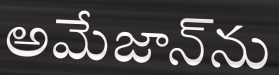
అమేజాన్‌ను